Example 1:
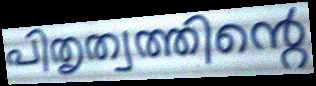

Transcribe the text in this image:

പിതൃത്വത്തിന്റെ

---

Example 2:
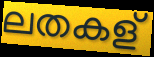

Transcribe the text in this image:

ലതകള്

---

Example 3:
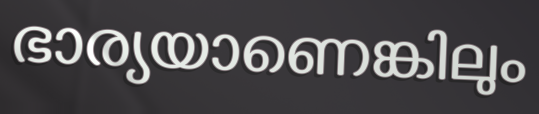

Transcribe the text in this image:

ഭാര്യയാണെങ്കിലും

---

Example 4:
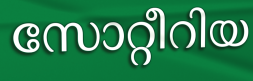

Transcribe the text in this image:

സോറ്റീറിയ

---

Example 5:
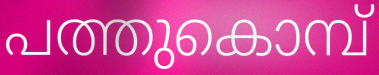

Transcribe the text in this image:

പത്തുകൊമ്പ്